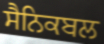
ਸੈਨਿਕਬਲ